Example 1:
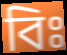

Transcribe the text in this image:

বিঃ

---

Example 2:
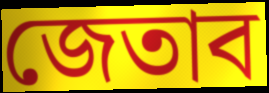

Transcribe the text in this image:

জেতাব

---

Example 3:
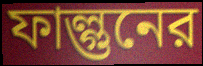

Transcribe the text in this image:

ফাল্গুনের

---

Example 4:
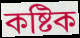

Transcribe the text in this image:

কষ্টিক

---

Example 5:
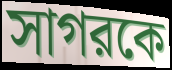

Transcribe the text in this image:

সাগরকে